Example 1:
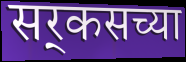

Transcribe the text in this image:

सर्कसच्या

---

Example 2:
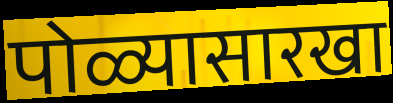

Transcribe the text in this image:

पोळ्यासारखा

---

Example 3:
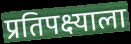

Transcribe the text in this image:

प्रतिपक्ष्याला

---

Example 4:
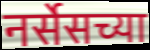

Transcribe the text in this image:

नर्सेसच्या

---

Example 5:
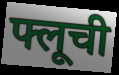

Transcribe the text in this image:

फ्लूची